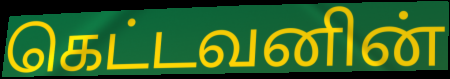
கெட்டவனின்